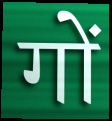
गों